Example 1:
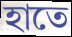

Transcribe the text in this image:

হাতে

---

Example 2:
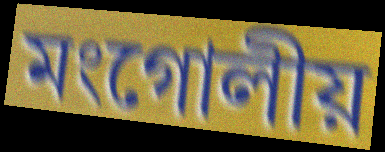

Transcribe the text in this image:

মংগোলীয়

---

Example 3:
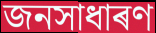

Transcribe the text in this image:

জনসাধাৰণ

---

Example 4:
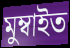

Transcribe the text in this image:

মুম্বাইত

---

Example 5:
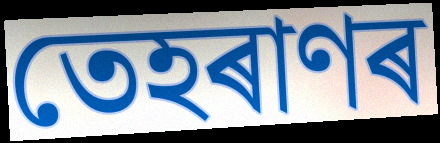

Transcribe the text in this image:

তেহৰাণৰ